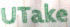
UTake